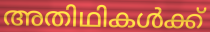
അതിഥികൾക്ക്